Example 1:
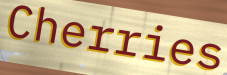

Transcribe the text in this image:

Cherries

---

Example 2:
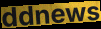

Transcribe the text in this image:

ddnews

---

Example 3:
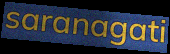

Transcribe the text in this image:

saranagati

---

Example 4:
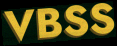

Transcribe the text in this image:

VBSS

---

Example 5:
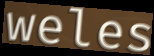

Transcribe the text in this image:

weles